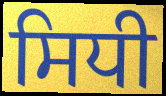
ਸਿਧੀ